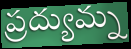
ప్రద్యుమ్న